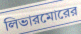
লিভারমোরের